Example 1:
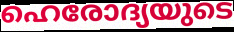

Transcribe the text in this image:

ഹെരോദ്യയുടെ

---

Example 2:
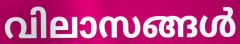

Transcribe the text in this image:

വിലാസങ്ങൾ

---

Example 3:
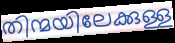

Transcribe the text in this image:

തിന്മയിലേക്കുള്ള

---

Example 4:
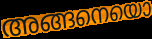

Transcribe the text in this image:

അങ്ങനെയൊ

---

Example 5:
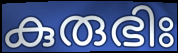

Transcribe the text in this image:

കുരുഭിഃ